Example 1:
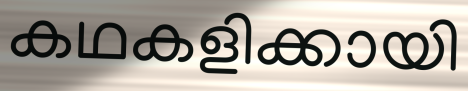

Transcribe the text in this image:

കഥകളിക്കായി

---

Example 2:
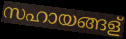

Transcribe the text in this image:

സഹായങ്ങള്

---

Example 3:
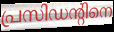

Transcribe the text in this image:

പ്രസിഡന്റിനെ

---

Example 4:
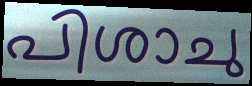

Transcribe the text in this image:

പിശാചു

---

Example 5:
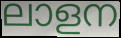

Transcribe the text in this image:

ലാളന